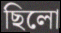
ছিলো